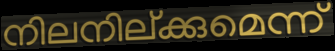
നിലനില്ക്കുമെന്ന്